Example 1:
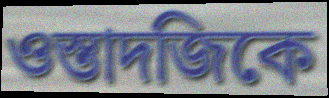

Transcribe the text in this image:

ওস্তাদজিকে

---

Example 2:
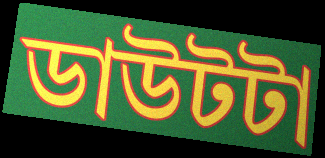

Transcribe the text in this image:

ডাউটটা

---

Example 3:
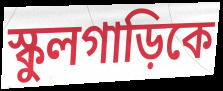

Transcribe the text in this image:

স্কুলগাড়িকে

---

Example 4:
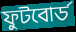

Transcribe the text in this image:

ফুটবোর্ড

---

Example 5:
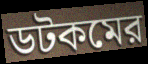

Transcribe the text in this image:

ডটকমের